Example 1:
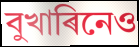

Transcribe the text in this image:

বুখাৰিনেও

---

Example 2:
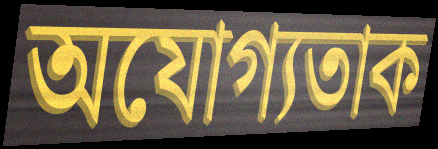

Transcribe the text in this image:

অযোগ্যতাক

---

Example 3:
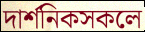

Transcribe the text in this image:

দাৰ্শনিকসকলে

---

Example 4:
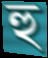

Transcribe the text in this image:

হু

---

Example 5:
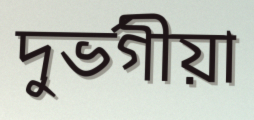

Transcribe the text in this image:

দুৰ্ভগীয়া